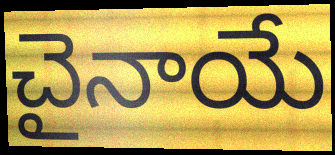
చైనాయే